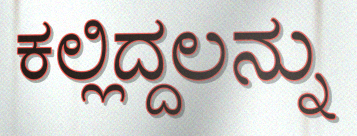
ಕಲ್ಲಿದ್ದಲನ್ನು